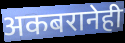
अकबरानेही